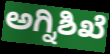
ಅಗ್ನಿಶಿಖೆ